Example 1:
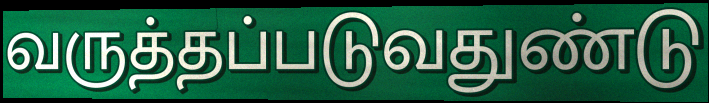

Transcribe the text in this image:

வருத்தப்படுவதுண்டு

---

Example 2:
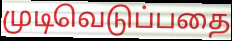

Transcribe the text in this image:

முடிவெடுப்பதை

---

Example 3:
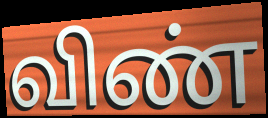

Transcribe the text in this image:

விண்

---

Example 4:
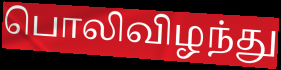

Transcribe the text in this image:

பொலிவிழந்து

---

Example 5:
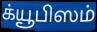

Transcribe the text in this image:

க்யூபிஸம்